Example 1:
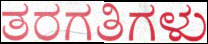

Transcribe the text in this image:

ತರಗತಿಗಳು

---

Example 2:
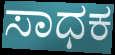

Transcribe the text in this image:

ಸಾಧಕ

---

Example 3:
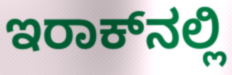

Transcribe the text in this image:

ಇರಾಕ್‌ನಲ್ಲಿ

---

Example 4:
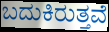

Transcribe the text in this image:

ಬದುಕಿರುತ್ತವೆ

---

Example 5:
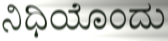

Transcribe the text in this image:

ನಿಧಿಯೊಂದು